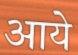
आये